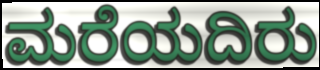
ಮರೆಯದಿರು